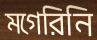
মগেরিনি